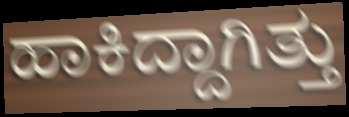
ಹಾಕಿದ್ದಾಗಿತ್ತು